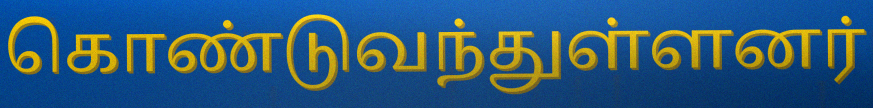
கொண்டுவந்துள்ளனர்